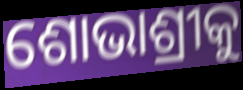
ଶୋଭାଶ୍ରୀକୁ